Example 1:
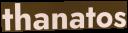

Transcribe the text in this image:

thanatos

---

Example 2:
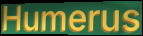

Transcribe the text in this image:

Humerus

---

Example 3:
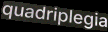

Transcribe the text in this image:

quadriplegia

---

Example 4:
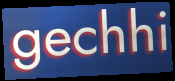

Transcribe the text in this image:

gechhi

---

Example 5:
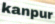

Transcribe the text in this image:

kanpur